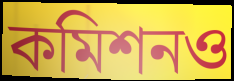
কমিশনও